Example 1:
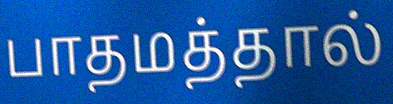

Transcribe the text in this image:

பாதமத்தால்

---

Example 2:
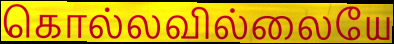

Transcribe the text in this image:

கொல்லவில்லையே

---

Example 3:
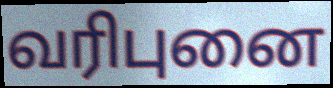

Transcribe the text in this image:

வரிபுனை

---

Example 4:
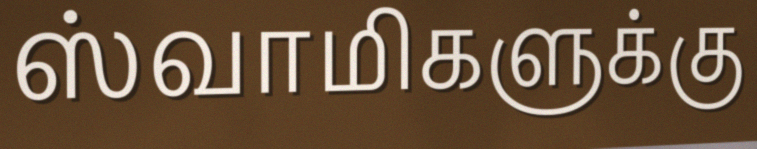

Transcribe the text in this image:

ஸ்வாமிகளுக்கு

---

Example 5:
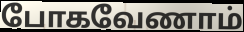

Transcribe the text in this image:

போகவேணாம்